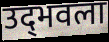
उद्‌भवला